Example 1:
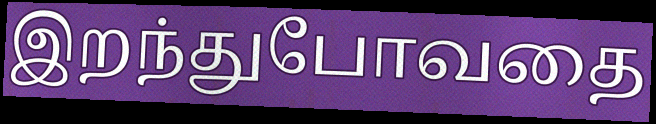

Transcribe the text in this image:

இறந்துபோவதை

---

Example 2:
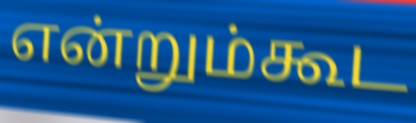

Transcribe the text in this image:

என்றும்கூட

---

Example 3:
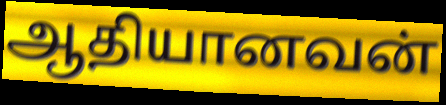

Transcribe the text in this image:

ஆதியானவன்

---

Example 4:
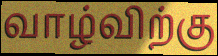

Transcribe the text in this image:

வாழ்விற்கு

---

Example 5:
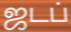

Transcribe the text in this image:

ஜடப்